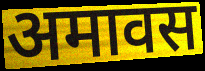
अमावस